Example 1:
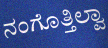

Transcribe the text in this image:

ನಂಗೊತ್ತಿಲ್ವಾ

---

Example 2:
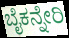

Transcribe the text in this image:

ಬೈಕನ್ನೇರಿ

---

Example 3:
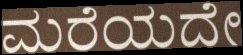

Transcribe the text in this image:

ಮರೆಯದೇ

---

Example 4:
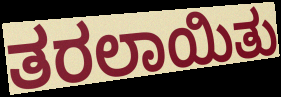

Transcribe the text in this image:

ತರಲಾಯಿತು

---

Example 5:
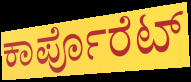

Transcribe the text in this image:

ಕಾರ್ಪೊರೆಟ್